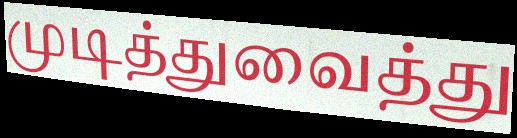
முடித்துவைத்து